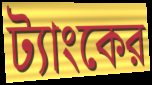
ট্যাংকের